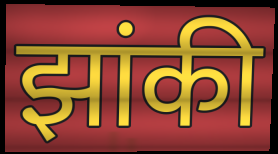
झांकी